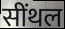
सींथल